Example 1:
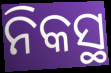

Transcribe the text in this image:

ନିକସ୍ଥ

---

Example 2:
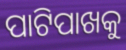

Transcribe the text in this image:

ପାଟିପାଖକୁ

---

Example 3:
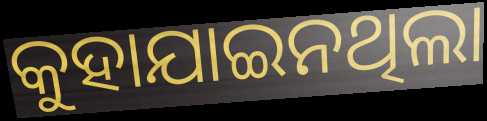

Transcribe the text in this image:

କୁହାଯାଇନଥିଲା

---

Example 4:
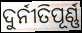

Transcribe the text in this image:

ଦୁର୍ନୀତିପୂର୍ଣ୍ଣ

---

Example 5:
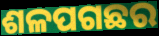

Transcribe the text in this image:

ଶଳପଗଛର